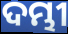
ଦମ୍ଭୀ